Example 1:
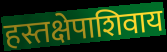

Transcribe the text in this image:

हस्तक्षेपाशिवाय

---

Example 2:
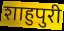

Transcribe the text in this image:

शाहुपुरी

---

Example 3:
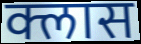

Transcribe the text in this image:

क्लास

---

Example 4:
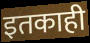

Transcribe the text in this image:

इतकाही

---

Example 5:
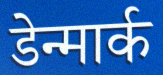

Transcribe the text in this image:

डेन्मार्क